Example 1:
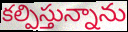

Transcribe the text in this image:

కల్పిస్తున్నాను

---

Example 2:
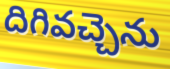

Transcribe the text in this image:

దిగివచ్చెను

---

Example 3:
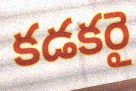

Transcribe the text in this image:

కడకరై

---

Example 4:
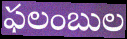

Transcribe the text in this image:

ఫలంబుల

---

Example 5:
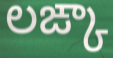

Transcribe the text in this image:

లఙ్కా